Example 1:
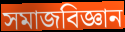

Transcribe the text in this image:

সমাজবিজ্ঞান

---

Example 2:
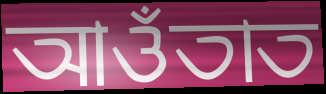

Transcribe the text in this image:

আওঁতাত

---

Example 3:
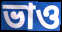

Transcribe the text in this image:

ভাও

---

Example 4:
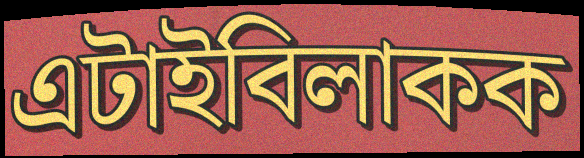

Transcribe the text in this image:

এটাইবিলাকক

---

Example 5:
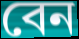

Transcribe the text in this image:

বেন